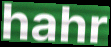
hahr